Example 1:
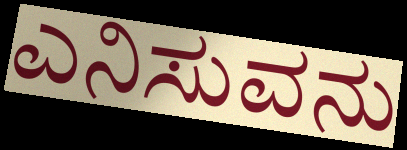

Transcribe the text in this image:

ಎನಿಸುವನು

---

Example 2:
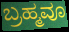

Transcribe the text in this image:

ಬ್ರಹ್ಮವೂ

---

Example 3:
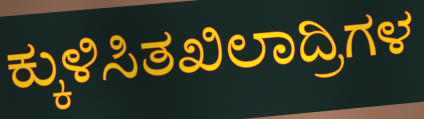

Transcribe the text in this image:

ಕ್ಕುಳಿಸಿತಖಿಲಾದ್ರಿಗಳ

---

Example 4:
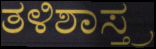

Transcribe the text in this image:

ತಳಿಶಾಸ್ತ್ರ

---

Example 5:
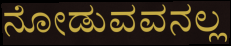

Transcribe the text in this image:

ನೋಡುವವನಲ್ಲ